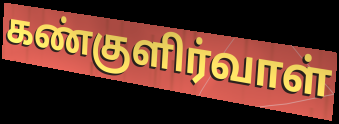
கண்குளிர்வாள்